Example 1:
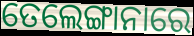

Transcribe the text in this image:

ତେଲେଙ୍ଗାନାରେ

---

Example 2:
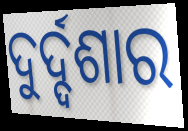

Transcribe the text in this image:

ଦୁର୍ଦ୍ଦଶାର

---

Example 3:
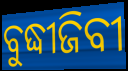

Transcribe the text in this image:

ବୁଦ୍ଧୀଜିବୀ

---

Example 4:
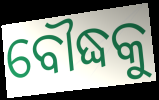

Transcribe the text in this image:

ବୌଦ୍ଧକୁ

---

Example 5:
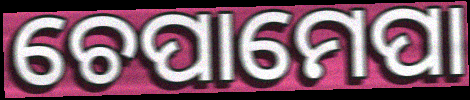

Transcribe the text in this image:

ଚେପାମେପା